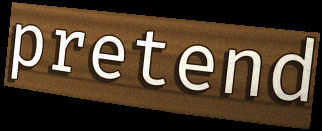
pretend